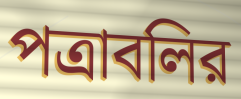
পত্রাবলির